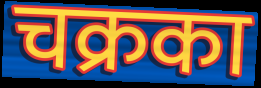
चक्रका